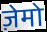
ज़ेमो